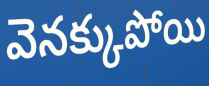
వెనక్కుపోయి